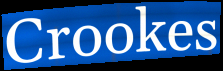
Crookes